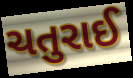
ચતુરાઈ